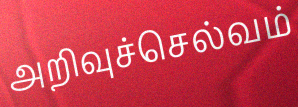
அறிவுச்செல்வம்